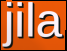
jila